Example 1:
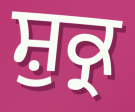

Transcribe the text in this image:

ਸ਼ੁਕ੍ਰ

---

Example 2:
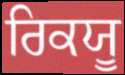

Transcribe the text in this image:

ਰਿਕਯੂ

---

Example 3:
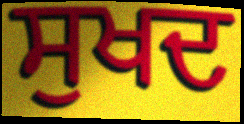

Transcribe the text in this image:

ਸੁਖਦ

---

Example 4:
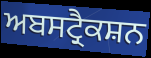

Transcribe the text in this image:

ਅਬਸਟ੍ਰੈਕਸ਼ਨ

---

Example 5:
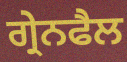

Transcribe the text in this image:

ਗ੍ਰੇਨਫੈਲ